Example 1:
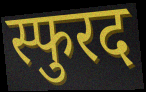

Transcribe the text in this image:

स्फुरद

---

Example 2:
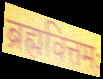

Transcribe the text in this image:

ब्रह्मवित्तमः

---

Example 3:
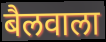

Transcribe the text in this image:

बैलवाला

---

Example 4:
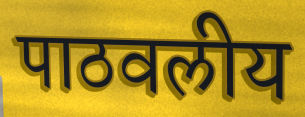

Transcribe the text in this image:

पाठवलीय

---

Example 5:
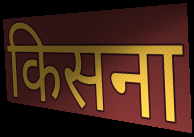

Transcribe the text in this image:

किसना